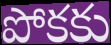
పోకకు